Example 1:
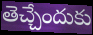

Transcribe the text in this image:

తెచ్చేందుకు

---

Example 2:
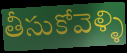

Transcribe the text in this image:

తీసుకోవెళ్ళి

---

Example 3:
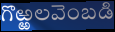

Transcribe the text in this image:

గొఱ్ఱలవెంబడి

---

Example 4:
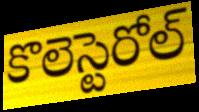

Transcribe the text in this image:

కొలెస్టెరోల్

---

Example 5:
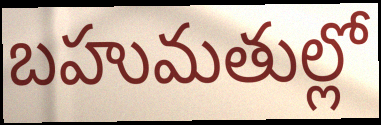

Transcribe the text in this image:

బహుమతుల్లో